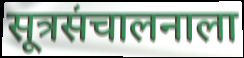
सूत्रसंचालनाला